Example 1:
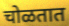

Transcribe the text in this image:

चोळतात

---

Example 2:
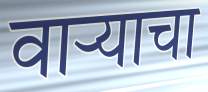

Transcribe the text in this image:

वाऱ्याचा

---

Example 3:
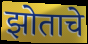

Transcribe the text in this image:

झोताचे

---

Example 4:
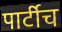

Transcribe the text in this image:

पार्टीच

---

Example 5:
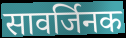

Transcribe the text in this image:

सावर्जिनक